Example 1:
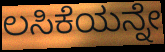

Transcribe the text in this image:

ಲಸಿಕೆಯನ್ನೇ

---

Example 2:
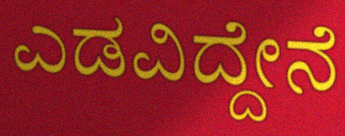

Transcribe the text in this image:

ಎಡವಿದ್ದೇನೆ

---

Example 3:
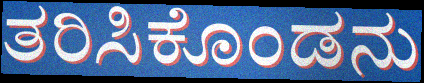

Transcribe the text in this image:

ತರಿಸಿಕೊಂಡನು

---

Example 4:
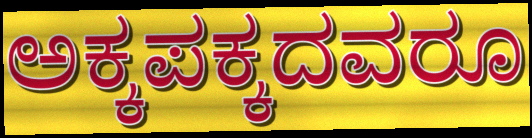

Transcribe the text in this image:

ಅಕ್ಕಪಕ್ಕದವರೂ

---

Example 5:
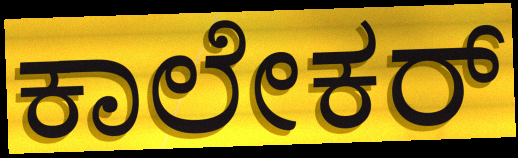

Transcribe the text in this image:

ಕಾಲೇಕರ್